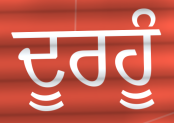
ਦੂਰਹੂੰ